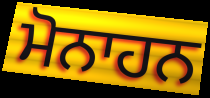
ਮੋਨਾਹਨ